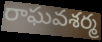
రాఘవశర్మ